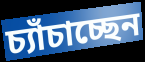
চ্যাঁচাচ্ছেন